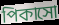
পিকাসো